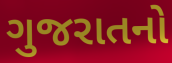
ગુજરાતનો